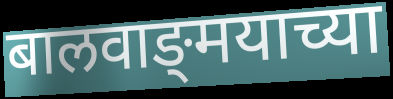
बालवाङ्‌मयाच्या